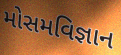
મોસમવિજ્ઞાન